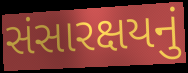
સંસારક્ષયનું